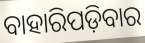
ବାହାରିପଡ଼ିବାର